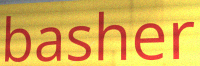
basher